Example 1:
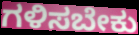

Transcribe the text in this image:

ಗಳಿಸಬೇಕು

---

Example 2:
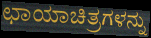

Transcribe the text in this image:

ಛಾಯಾಚಿತ್ರಗಳನ್ನು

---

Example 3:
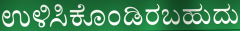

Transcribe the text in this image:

ಉಳಿಸಿಕೊಂಡಿರಬಹುದು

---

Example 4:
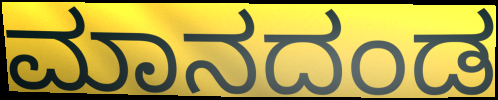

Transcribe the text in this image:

ಮಾನದಂಡ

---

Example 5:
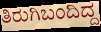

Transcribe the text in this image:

ತಿರುಗಿಬಂದಿದ್ದ